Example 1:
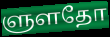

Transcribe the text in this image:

ளுளதோ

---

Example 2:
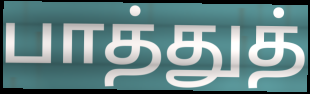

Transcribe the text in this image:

பாத்துத்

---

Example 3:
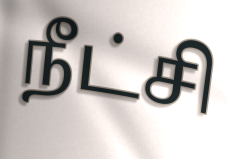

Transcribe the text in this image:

நீட்சி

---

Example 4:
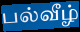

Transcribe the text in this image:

பல்வீழ்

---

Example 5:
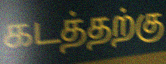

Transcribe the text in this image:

கடத்தற்கு